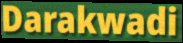
Darakwadi